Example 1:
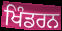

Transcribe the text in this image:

ਖਿੰਡਰਨ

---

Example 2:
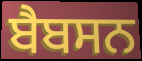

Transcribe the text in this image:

ਬੈਬਸਨ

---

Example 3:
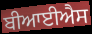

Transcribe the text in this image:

ਬੀਆਈਐਸ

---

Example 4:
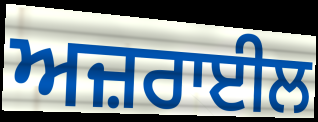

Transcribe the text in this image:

ਅਜ਼ਰਾਈਲ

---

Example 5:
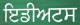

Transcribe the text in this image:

ਇਡੀਅਟਸ